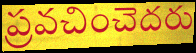
ప్రవచించెదరు